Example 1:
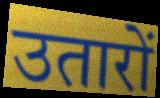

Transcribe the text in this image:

उतारों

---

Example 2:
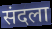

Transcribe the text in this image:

संदला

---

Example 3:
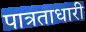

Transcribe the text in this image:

पात्रताधारी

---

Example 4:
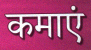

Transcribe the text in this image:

कमाएं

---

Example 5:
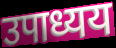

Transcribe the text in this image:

उपाध्यय